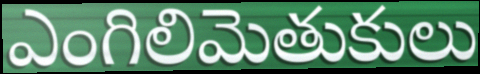
ఎంగిలిమెతుకులు